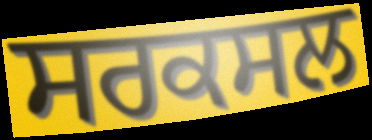
ਸਰਕਸਲ